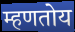
म्हणतोय